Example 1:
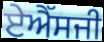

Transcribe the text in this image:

ਏਐੱਸਜੀ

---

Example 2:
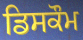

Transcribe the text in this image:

ਡਿਸਕੌਮ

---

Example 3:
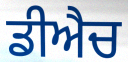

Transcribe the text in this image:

ਡੀਐਚ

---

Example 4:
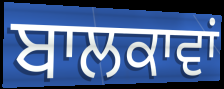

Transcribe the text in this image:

ਬਾਲਕਾਵਾਂ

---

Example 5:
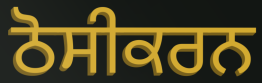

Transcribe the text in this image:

ਠੋਸੀਕਰਨ